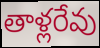
తాళ్లరేవు